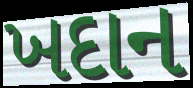
ખદાન